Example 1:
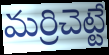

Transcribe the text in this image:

మర్రిచెట్టే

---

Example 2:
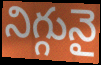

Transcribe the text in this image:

నిగ్గునై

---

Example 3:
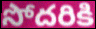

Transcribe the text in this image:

సోదరికి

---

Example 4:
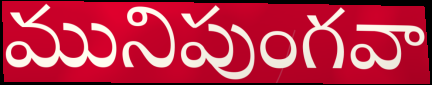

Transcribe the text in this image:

మునిపుంగవా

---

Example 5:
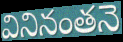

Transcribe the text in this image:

వినినంతనె